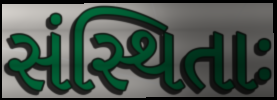
સંસ્થિતાઃ